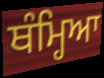
ਥੰਮ੍ਹਿਆ